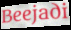
Beejadi